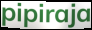
pipiraja